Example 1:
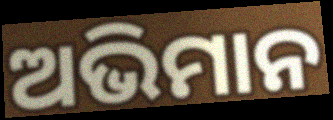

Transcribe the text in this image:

ଅଭିମାନ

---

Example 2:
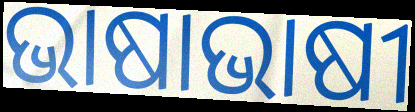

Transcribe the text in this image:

ଭାଷାଭାଷୀ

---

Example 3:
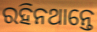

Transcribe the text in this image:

ରହିନଥାନ୍ତେ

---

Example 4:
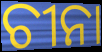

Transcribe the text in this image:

ଚୀନା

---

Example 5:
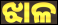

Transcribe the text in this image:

ଝାଳ